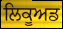
ਲਿਕੂਅਡ